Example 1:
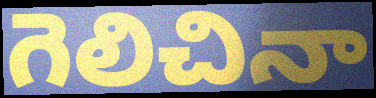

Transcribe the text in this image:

గెలిచినా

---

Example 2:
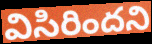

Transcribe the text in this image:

విసిరిందని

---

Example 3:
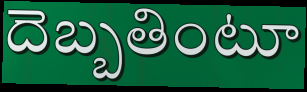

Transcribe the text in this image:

దెబ్బతింటూ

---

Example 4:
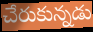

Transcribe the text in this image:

చేరుకున్నడు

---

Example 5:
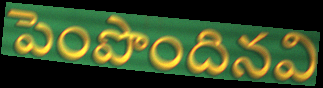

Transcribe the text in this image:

పెంపొందినవి